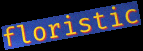
floristic